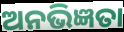
ଅନଭିଜ୍ଞତା